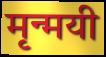
मृन्मयी